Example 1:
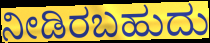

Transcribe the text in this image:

ನೀಡಿರಬಹುದು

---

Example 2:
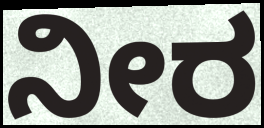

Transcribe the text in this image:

ನೀರ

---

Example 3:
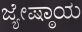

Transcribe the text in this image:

ಜ್ಯೇಷ್ಠಾಯ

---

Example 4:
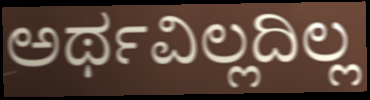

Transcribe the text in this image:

ಅರ್ಥವಿಲ್ಲದಿಲ್ಲ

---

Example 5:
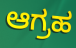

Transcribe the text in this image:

ಆಗ್ರಹ